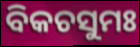
ବିକଚସୁମଃ